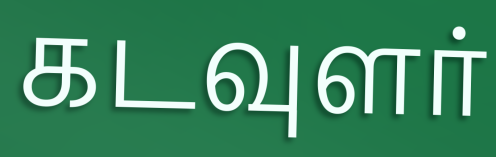
கடவுளர்